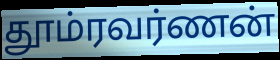
தூம்ரவர்ணன்